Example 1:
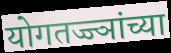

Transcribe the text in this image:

योगतज्ज्ञांच्या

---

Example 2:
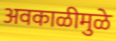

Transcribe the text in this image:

अवकाळीमुळे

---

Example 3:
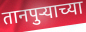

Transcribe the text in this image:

तानपुऱ्याच्या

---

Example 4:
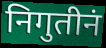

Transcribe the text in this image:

निगुतीनं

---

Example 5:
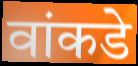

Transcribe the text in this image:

वांकडे